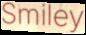
Smiley